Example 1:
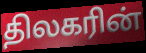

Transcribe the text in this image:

திலகரின்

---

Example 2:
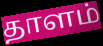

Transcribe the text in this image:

தாளம்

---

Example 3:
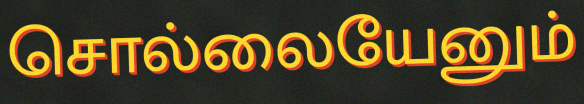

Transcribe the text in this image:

சொல்லையேனும்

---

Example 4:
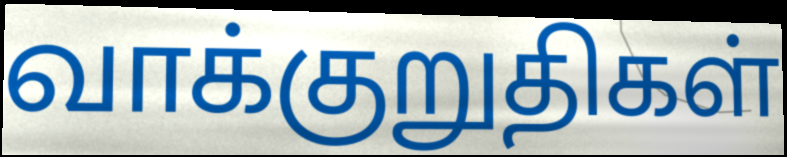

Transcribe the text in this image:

வாக்குறுதிகள்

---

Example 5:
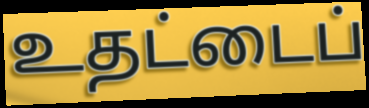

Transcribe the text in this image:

உதட்டைப்